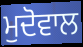
ਮੁਦੋਵਾਲ